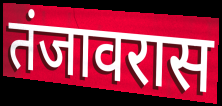
तंजावरास